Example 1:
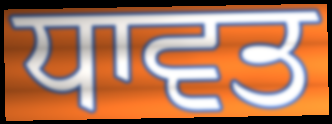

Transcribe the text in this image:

ਧਾਵਤ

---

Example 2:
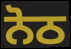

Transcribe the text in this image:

ਨੋਠ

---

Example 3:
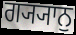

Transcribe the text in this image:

ਗ੍ਯ੍ਯਾਨੁ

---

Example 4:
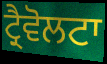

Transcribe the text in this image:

ਟ੍ਰੈਵੋਲਟਾ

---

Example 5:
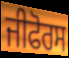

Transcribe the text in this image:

ਜੀਫੋਰਸ